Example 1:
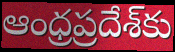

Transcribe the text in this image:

ఆంధ్రప్రదేశ్‌కు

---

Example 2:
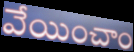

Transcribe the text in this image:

వేయించాం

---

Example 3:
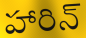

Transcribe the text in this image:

హారిన్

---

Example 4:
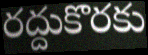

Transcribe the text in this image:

రద్దుకొరకు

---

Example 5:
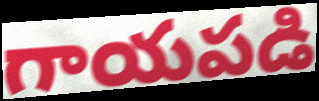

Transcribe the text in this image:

గాయపడి